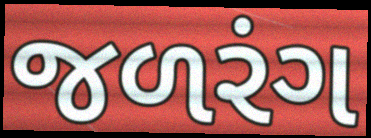
જળરંગ